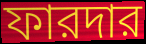
ফারদার